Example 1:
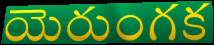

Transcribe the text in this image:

యెరుంగక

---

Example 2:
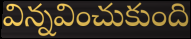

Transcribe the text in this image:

విన్నవించుకుంది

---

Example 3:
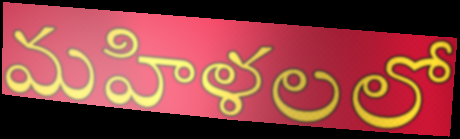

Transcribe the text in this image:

మహిళలలో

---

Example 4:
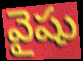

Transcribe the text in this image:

వైషు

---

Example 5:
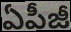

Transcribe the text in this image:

ఏపీజీ